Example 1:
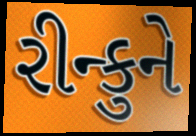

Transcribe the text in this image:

રીન્કુને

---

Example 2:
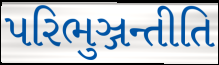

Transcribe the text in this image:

પરિભુઞ્જન્તીતિ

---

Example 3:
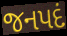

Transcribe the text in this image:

જનપદં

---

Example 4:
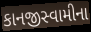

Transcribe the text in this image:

કાનજીસ્વામીના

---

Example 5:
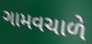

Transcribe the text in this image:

ગામવચાળે